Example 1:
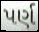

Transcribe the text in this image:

પર્ણ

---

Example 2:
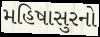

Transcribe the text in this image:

મહિષાસુરનો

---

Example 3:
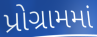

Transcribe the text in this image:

પ્રોગ્રામમાં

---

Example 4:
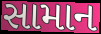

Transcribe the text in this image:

સામાન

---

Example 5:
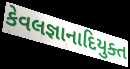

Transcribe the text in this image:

કેવલજ્ઞાનાદિયુક્ત